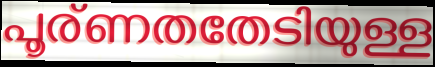
പൂര്ണതതേടിയുള്ള